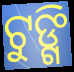
ଟୁଙ୍ଗି